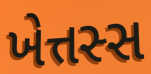
ખેત્તસ્સ